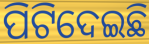
ପିଟିଦେଇଛି